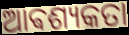
ଆଵଶ୍ୟକତା